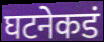
घटनेकडं